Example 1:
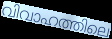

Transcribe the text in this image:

വിവാഹത്തിലെ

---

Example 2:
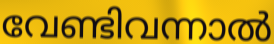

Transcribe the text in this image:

വേണ്ടിവന്നാൽ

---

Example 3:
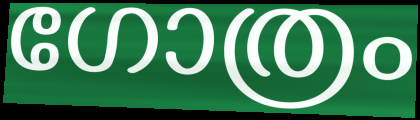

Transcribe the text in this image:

ഗോത്രം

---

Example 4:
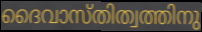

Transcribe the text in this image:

ദൈവാസ്തിത്വത്തിനു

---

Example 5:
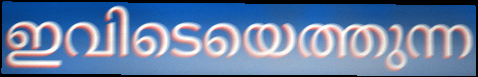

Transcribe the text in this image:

ഇവിടെയെത്തുന്ന